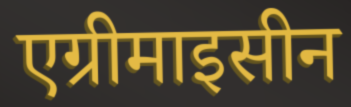
एग्रीमाइसीन